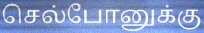
செல்போனுக்கு